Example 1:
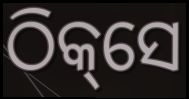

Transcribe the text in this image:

ଠିକ୍‌ସେ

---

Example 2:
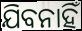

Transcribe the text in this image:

ଯିବନାହିଁ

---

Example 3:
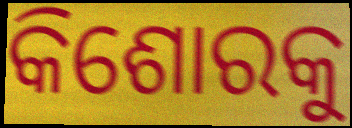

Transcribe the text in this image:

କିଶୋରକୁ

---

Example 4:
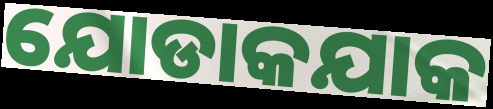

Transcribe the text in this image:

ଯୋଡାକଯାକ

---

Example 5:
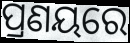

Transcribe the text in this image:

ପ୍ରଣୟରେ